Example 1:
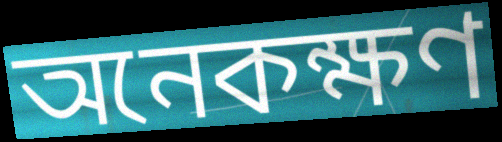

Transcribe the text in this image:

অনেকক্ষণ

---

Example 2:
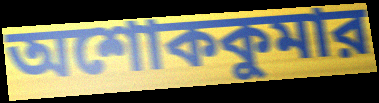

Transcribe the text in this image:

অশোককুমার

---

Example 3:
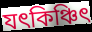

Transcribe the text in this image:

যৎকিঞ্চিৎ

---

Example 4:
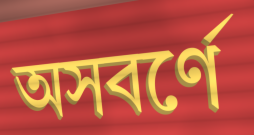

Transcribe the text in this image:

অসবর্ণে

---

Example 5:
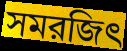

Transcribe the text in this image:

সমরজিৎ